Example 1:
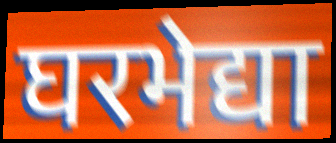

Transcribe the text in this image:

घरभेद्या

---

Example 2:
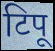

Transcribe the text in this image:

टिपू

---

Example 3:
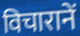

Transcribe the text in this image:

विचारानें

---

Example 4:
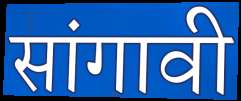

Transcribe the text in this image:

सांगावी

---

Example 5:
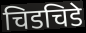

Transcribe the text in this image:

चिडचिडे